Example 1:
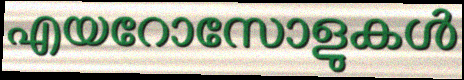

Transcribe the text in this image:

എയറോസോളുകൾ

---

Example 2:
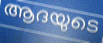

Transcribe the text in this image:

ആദയുടെ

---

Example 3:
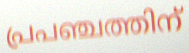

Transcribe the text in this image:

പ്രപഞ്ചത്തിന്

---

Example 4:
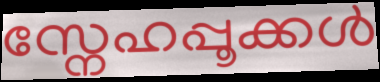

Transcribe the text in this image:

സ്നേഹപ്പൂക്കൾ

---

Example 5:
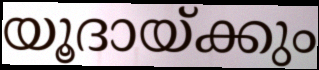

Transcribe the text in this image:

യൂദായ്ക്കും